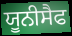
ਯੂਨੀਸੈਫ